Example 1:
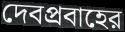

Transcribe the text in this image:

দেবপ্রবাহের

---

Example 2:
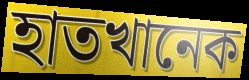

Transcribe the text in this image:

হাতখানেক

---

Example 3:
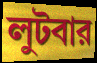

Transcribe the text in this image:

লুটবার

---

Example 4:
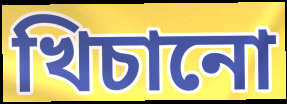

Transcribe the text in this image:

খিচানো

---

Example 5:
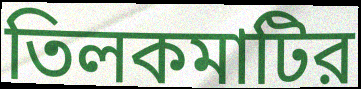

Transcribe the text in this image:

তিলকমাটির